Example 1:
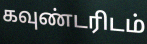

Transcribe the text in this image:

கவுண்டரிடம்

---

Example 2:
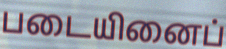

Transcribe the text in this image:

படையினைப்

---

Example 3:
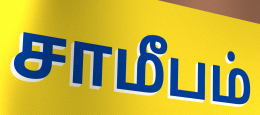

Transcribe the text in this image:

சாமீபம்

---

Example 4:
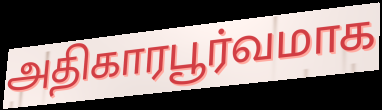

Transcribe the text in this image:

அதிகாரபூர்வமாக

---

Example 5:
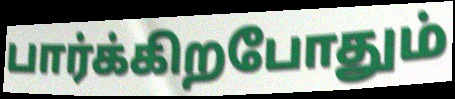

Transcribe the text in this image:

பார்க்கிறபோதும்